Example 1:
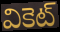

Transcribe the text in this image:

వికెట్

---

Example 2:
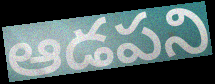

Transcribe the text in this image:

ఆడపని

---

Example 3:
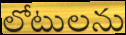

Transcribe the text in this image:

లోటులను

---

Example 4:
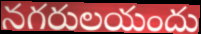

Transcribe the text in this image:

నగరులయందు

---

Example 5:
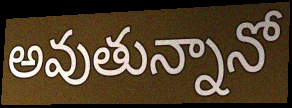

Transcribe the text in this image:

అవుతున్నానో